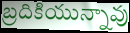
బ్రదికియున్నావు